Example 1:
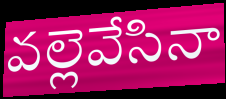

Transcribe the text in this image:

వల్లెవేసినా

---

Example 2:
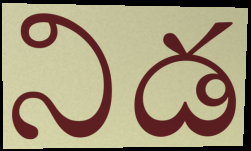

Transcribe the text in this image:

నిడ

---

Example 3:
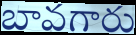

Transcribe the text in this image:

బావగారు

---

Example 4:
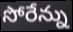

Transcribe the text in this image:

సోరేన్ను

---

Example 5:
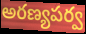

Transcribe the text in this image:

అరణ్యపర్వ